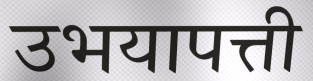
उभयापत्ती